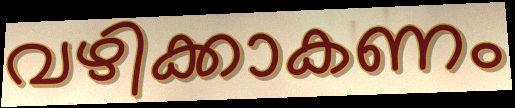
വഴിക്കാകണം